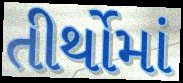
તીર્થોમાં